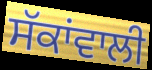
ਸੱਕਾਂਵਾਲੀ